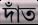
দাঁত